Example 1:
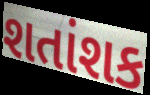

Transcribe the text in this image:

શતાંશક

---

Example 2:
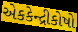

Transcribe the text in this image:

એકકેન્દ્રીકોષો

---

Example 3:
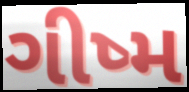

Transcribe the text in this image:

ગીષ્મ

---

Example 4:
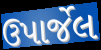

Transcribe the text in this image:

ઉપાર્જેલ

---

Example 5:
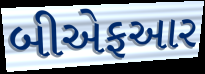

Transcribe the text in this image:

બીએફઆર